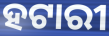
ହଟାରୀ